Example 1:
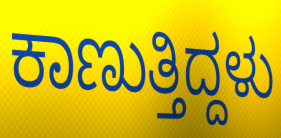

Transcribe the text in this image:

ಕಾಣುತ್ತಿದ್ದಳು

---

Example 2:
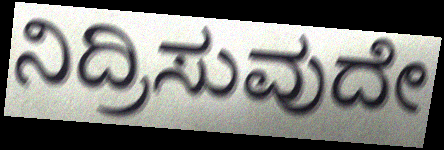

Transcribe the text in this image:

ನಿದ್ರಿಸುವುದೇ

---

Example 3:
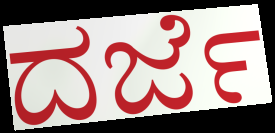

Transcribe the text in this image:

ದರ್ಜೆ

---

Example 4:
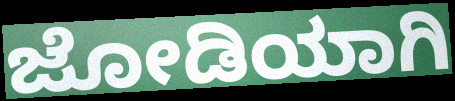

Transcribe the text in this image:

ಜೋಡಿಯಾಗಿ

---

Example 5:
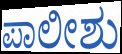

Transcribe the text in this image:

ಪಾಲೀಶು